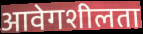
आवेगशीलता